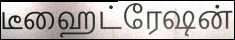
டீஹைட்ரேஷன்